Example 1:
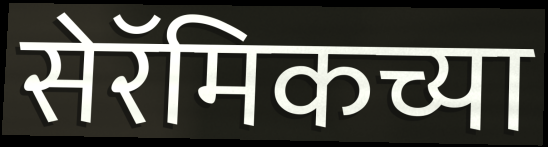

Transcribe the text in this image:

सेरॅमिकच्या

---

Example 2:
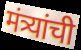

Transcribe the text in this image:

मंत्र्यांची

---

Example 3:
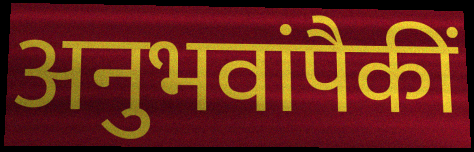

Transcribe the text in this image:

अनुभवांपैकीं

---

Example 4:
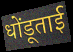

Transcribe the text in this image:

धोंडूताई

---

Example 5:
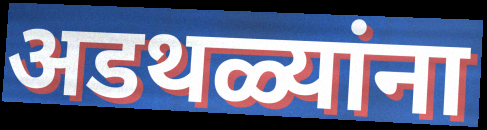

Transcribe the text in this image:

अडथळ्यांना